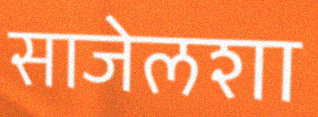
साजेलशा